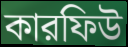
কারফিউ